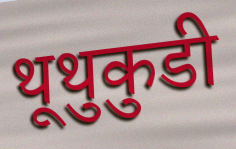
थूथुकुडी